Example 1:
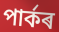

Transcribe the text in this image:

পাৰ্কৰ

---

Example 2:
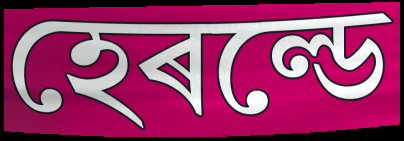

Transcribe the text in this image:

হেৰল্ডে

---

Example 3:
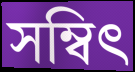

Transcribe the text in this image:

সম্বিৎ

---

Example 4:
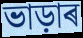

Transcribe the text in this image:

ভাড়াৰ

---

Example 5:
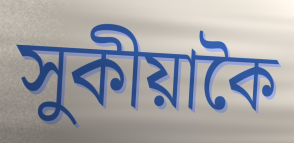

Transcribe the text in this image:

সুকীয়াকৈ